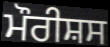
ਮੌਰੀਸ਼ਸ